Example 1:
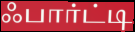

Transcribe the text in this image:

ஃபார்ட்டி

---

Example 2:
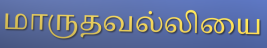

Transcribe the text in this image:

மாருதவல்லியை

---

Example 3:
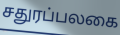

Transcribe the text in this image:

சதுரப்பலகை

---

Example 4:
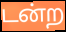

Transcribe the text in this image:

டன்ற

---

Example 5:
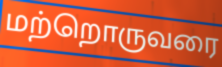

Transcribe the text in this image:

மற்றொருவரை